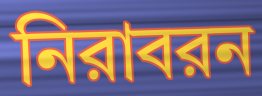
নিরাবরন